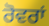
ਰੋਵਰਾਂ